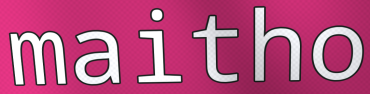
maitho